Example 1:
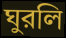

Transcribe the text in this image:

ঘুরলি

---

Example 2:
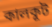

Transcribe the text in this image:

কালকূট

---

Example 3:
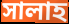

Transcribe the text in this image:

সালাহ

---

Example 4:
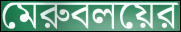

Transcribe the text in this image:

মেরুবলয়ের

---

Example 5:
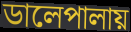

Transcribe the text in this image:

ডালেপালায়